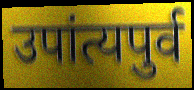
उपांत्यपुर्व